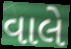
વાલે